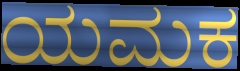
ಯಮಕ